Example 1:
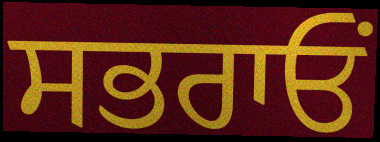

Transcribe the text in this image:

ਸਭਰਾਓਂ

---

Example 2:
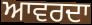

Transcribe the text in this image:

ਆਵਰਦਾ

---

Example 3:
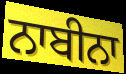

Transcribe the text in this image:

ਨਾਬੀਨਾ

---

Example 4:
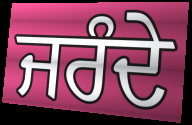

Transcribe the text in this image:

ਜਰੰਦੇ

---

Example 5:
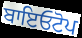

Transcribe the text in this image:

ਬਾਇਓਟੋਪ